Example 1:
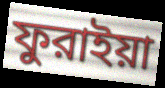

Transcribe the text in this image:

ফুরাইয়া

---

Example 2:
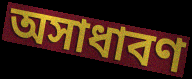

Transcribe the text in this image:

অসাধাবণ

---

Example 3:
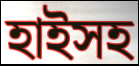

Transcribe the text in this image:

হাইসহ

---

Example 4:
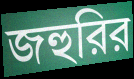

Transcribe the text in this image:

জহুরির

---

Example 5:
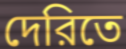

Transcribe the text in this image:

দেরিতে